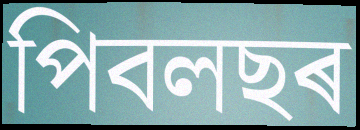
পিবলছৰ